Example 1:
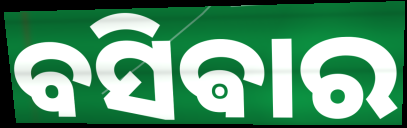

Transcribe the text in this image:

ବସିଵାର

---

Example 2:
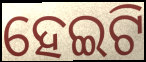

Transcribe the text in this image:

ହେଇଟି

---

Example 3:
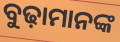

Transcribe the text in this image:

ବୁଢ଼ାମାନଙ୍କ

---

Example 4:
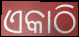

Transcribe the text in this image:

ଏକାଠି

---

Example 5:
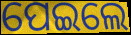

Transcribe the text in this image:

ପେଇଲେ